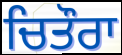
ਚਿਤੌਰਾ